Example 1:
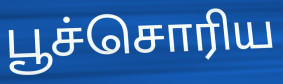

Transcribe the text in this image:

பூச்சொரிய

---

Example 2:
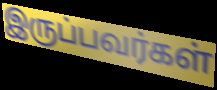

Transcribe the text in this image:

இருப்பவர்கள்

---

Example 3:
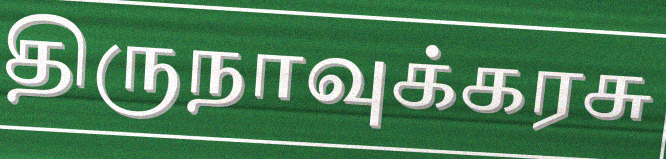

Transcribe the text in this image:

திருநாவுக்கரசு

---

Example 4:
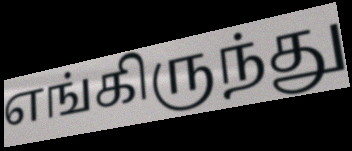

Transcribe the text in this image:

எங்கிருந்து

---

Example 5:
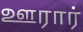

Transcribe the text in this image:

ஊரார்